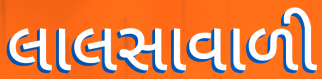
લાલસાવાળી